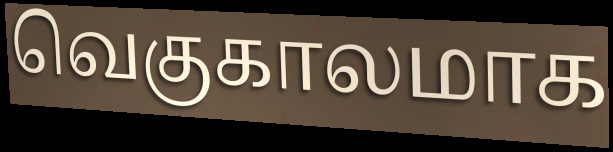
வெகுகாலமாக